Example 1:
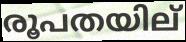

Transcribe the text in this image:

രൂപതയില്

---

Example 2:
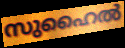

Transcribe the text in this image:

സുഹൈൽ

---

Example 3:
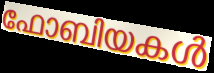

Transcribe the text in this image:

ഫോബിയകൾ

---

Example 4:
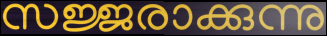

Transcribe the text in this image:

സജ്ജരാക്കുന്നു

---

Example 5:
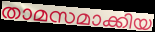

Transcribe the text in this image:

താമസമാക്കിയ